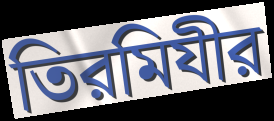
তিরমিযীর